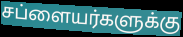
சப்ளையர்களுக்கு